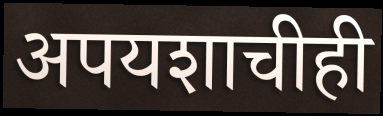
अपयशाचीही